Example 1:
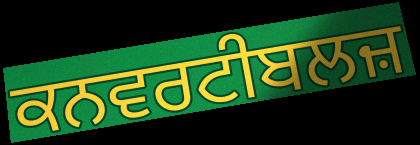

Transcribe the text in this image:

ਕਨਵਰਟੀਬਲਜ਼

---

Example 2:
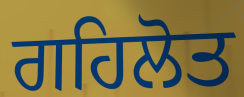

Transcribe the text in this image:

ਗਹਿਲੋਤ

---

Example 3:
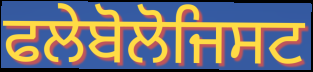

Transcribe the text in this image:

ਫਲੇਬੋਲੋਜਿਸਟ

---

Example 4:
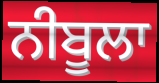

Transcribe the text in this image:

ਨੀਬੂਲਾ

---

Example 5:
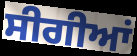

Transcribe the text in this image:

ਸੀਗੀਆਂ